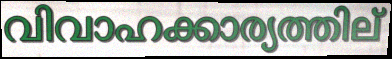
വിവാഹക്കാര്യത്തില്